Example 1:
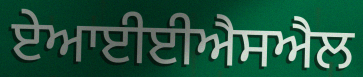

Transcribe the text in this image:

ਏਆਈਈਐਸਐਲ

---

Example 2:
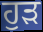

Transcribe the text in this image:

ਹੁੜ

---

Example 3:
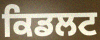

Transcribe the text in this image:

ਕਿਡਲਟ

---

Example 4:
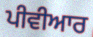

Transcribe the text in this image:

ਪੀਵੀਆਰ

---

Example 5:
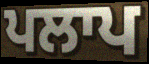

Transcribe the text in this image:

ਪਲਾਪ